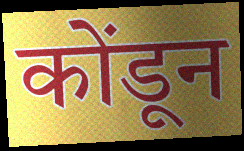
कोंडून